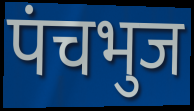
पंचभुज